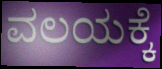
ವಲಯಕ್ಕೆ